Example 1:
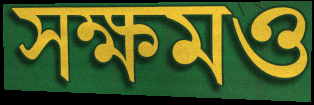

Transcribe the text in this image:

সক্ষমও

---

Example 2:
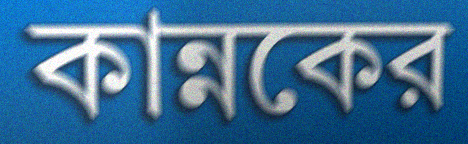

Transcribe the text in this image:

কান্নকের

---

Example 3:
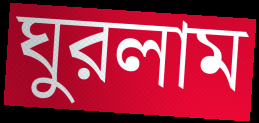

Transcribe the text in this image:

ঘুরলাম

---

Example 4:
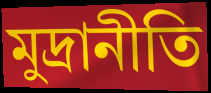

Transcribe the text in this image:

মুদ্রানীতি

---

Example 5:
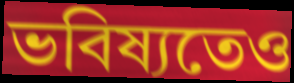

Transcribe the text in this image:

ভবিষ্যতেও